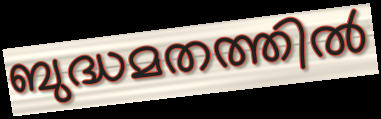
ബുദ്ധമതത്തിൽ